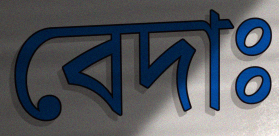
বেদাঃ